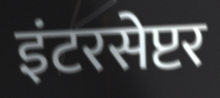
इंटरसेप्टर